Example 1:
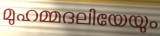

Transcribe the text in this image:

മുഹമ്മദലിയേയും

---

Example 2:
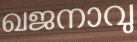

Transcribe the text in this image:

ഖജനാവു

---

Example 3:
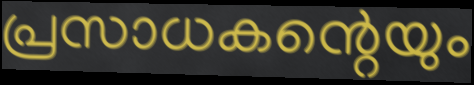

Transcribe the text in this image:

പ്രസാധകന്റെയും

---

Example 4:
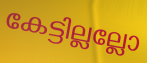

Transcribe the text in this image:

കേട്ടില്ലല്ലോ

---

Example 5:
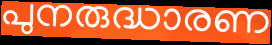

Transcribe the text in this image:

പുനരുദ്ധാരണ